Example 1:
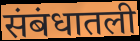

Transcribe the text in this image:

संबंधातली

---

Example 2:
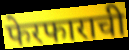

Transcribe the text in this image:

फेरफाराची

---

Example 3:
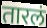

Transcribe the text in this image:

तारलं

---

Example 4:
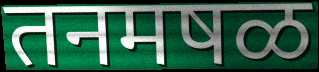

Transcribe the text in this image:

तनमषळ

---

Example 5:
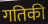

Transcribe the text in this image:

गतिकी